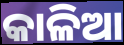
କାଳିଆ